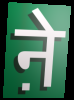
ऩे